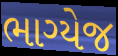
ભાગ્યેજ